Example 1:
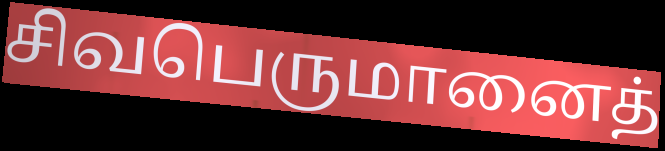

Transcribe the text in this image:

சிவபெருமானைத்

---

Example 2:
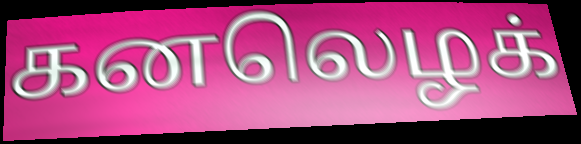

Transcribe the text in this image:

கனலெழக்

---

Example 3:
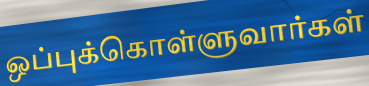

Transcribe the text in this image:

ஒப்புக்கொள்ளுவார்கள்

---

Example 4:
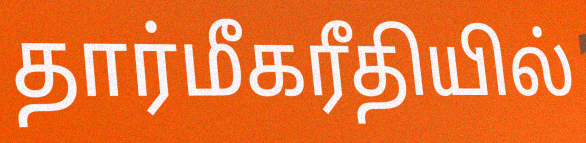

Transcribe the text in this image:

தார்மீகரீதியில்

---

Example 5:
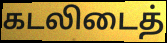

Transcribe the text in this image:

கடலிடைத்